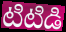
టిటిడి